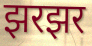
झरझर